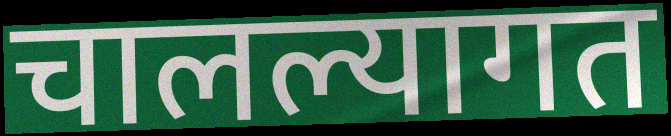
चालल्यागत